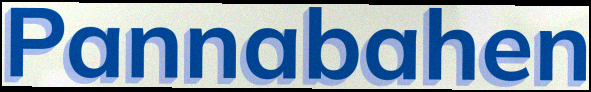
Pannabahen